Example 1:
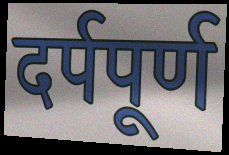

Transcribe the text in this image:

दर्पपूर्ण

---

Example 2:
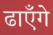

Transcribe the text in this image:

ढाएँगे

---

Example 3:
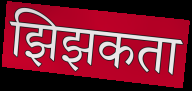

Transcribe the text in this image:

झिझकता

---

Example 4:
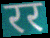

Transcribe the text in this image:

रर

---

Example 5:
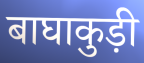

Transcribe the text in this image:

बाघाकुड़ी